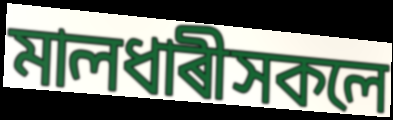
মালধাৰীসকলে